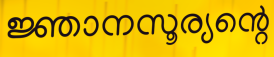
ജ്ഞാനസൂര്യന്റെ